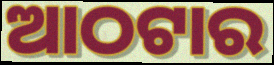
ଆଠଟାର